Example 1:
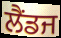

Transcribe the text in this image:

ਲੈਂਡਜ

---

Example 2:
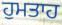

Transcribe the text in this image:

ਹੁਮਤਾਹ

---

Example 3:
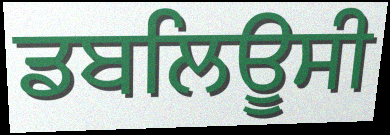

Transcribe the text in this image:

ਡਬਲਿਊਸੀ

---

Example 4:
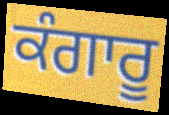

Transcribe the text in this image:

ਕੰਗਾਰੂ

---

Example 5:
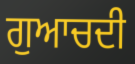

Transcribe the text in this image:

ਗੁਆਚਦੀ